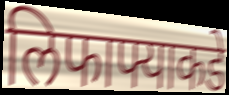
लिफाफ्याकडे